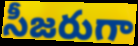
సీజరుగా